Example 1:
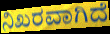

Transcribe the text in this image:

ನಿಖರವಾಗಿದೆ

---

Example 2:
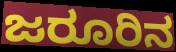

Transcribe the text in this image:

ಜರೂರಿನ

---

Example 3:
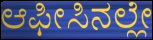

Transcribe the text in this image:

ಆಫೀಸಿನಲ್ಲೇ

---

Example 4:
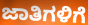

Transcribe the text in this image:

ಜಾತಿಗಳಿಗೆ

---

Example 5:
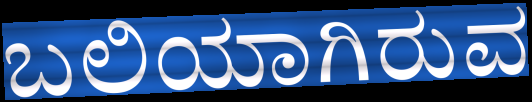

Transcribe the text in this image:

ಬಲಿಯಾಗಿರುವ